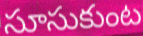
సూసుకుంట